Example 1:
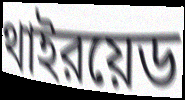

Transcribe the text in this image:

থাইরয়েড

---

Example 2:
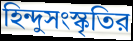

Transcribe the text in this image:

হিন্দুসংস্কৃতির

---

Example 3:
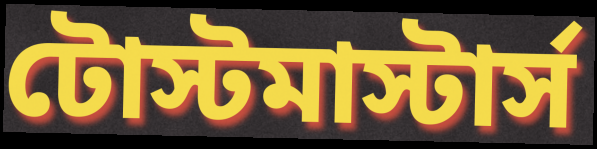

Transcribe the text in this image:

টোস্টমাস্টার্স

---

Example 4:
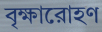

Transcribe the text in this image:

বৃক্ষারোহণ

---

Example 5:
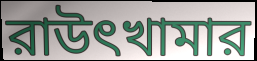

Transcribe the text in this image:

রাউৎখামার